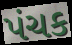
પંચક